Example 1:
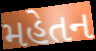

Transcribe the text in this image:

મહેતન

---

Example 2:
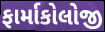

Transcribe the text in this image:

ફાર્માકોલોજી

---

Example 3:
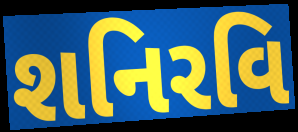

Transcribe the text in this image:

શનિરવિ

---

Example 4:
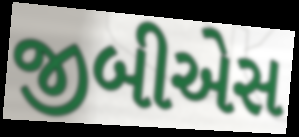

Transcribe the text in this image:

જીબીએસ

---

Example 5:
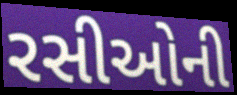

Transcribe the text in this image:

રસીઓની